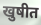
खुषीत